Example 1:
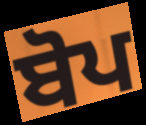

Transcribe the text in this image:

ਬੋਪ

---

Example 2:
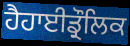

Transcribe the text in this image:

ਹੈਹਾਈਡ੍ਰੌਲਿਕ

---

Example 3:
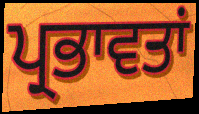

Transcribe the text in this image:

ਪ੍ਰਭਾਵਤਾਂ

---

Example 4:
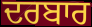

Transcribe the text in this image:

ਦਰਬਾਰ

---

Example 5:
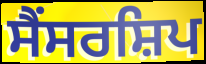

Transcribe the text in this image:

ਸੈਂਸਰਸ਼ਿਪ